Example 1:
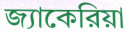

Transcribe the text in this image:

জ্যাকেরিয়া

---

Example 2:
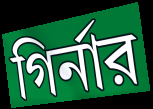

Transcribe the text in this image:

গির্নার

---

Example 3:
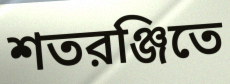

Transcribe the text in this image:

শতরঞ্জিতে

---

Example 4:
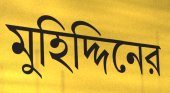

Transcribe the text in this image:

মুহিদ্দিনের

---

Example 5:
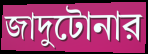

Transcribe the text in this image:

জাদুটোনার